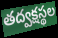
తద్వక్షస్థల